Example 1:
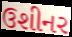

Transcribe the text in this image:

ઉશીનર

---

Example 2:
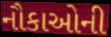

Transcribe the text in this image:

નૌકાઓની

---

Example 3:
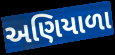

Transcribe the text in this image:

અણિયાળા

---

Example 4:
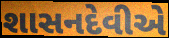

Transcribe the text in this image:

શાસનદેવીએ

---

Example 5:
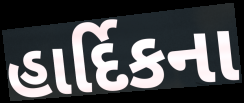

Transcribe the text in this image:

હાર્દિકના